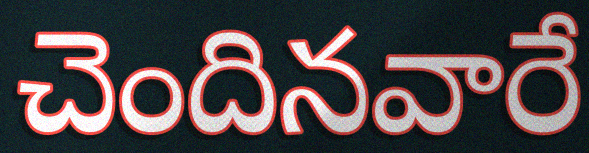
చెందినవారే